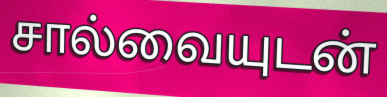
சால்வையுடன்